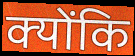
क्‍योंकि